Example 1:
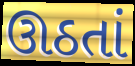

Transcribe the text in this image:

ઊઠતાં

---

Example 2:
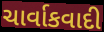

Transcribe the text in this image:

ચાર્વાકવાદી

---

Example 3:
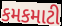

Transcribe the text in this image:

કમકમાટી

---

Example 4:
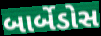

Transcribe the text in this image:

બાર્બેડોસ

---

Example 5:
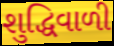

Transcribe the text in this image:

શુદ્ધિવાળી